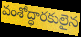
వంశోద్ధారకులైన